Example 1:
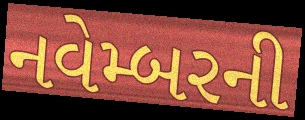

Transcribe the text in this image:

નવેમ્બરની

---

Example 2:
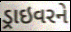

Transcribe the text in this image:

ડ્રાઇવરને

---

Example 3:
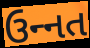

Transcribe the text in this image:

ઉન્‍નત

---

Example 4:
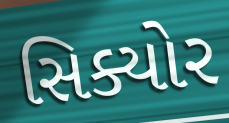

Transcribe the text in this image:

સિક્યોર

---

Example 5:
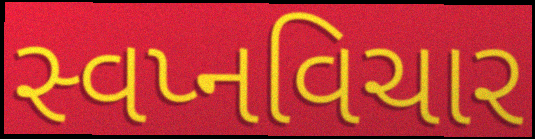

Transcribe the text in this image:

સ્વપ્નવિચાર